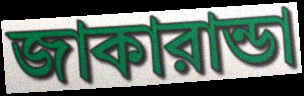
জাকারান্ডা